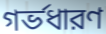
গর্ভধারণ